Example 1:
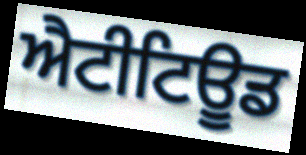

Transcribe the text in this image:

ਐਟੀਟਿਊਡ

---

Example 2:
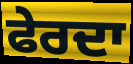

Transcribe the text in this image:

ਫੇਰਦਾ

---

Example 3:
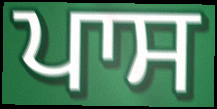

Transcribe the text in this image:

ਪਾਸ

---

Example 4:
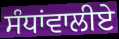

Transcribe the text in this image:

ਸੰਧਾਂਵਾਲੀਏ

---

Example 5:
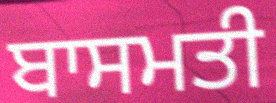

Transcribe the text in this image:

ਬਾਸਮਤੀ